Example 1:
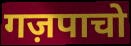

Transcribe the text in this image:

गज़पाचो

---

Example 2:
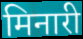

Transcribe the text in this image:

मिनारी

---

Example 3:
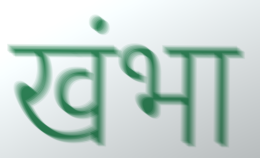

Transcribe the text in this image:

खंभा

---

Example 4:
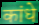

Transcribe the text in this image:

कांधे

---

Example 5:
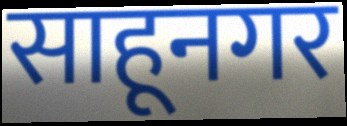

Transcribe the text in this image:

साहूनगर